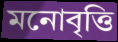
মনোবৃত্তি